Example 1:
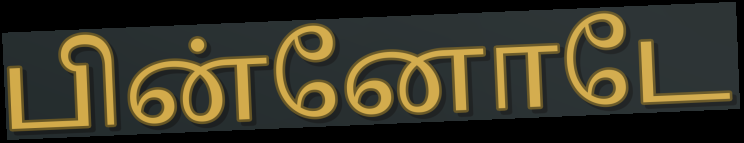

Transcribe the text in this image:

பின்னோடே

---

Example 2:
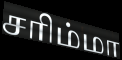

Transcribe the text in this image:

சரிம்மா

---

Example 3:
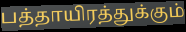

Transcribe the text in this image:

பத்தாயிரத்துக்கும்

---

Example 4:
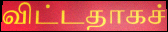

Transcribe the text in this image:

விட்டதாகச்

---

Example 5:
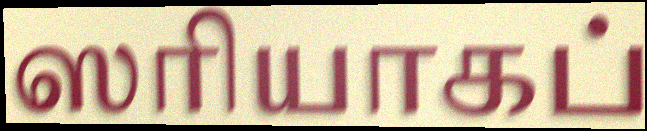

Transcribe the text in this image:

ஸரியாகப்